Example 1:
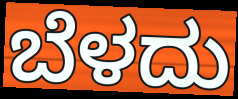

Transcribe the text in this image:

ಬೆಳದು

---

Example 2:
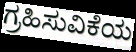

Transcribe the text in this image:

ಗ್ರಹಿಸುವಿಕೆಯ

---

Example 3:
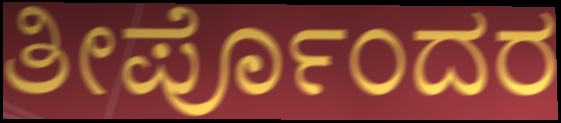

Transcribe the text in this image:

ತೀರ್ಪೊಂದರ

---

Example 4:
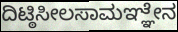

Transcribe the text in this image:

ದಿಟ್ಠಿಸೀಲಸಾಮಞ್ಞೇನ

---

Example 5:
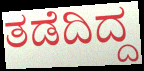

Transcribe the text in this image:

ತಡೆದಿದ್ದ